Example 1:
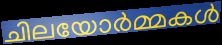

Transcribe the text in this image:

ചിലയോർമ്മകൾ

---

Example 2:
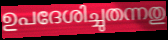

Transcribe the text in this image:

ഉപദേശിച്ചുതന്നതു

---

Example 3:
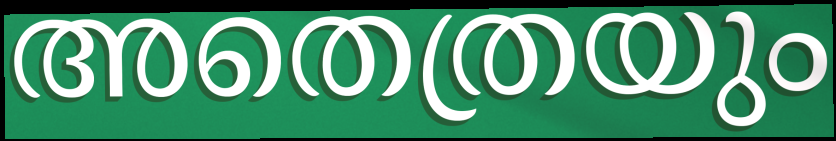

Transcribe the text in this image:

അതെത്രയും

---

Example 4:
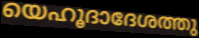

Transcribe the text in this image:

യെഹൂദാദേശത്തു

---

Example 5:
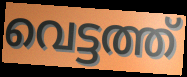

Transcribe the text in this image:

വെട്ടത്ത്